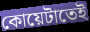
কোয়েটাতেই